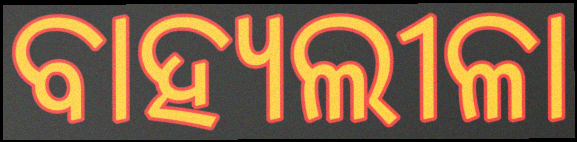
ବାହ୍ୟଲୀଳା